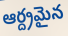
ఆర్ద్రమైన